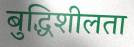
बुद्धिशीलता